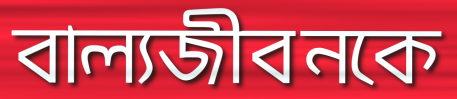
বাল্যজীবনকে